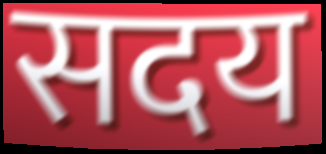
सदय